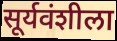
सूर्यवंशीला